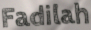
Fadilah